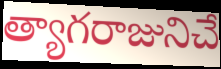
త్యాగరాజునిచే